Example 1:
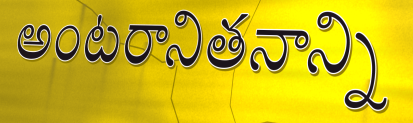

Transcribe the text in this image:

అంటరానితనాన్ని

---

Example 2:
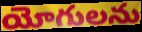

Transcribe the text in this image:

యోగులను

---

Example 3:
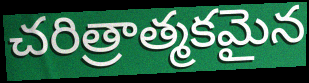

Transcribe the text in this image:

చరిత్రాత్మకమైన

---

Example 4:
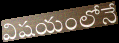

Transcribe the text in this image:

విషయంలోనే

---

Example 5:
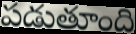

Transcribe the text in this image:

పడుతూంది